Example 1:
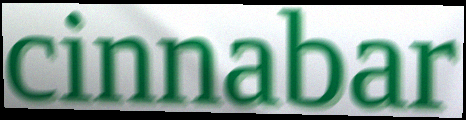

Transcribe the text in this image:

cinnabar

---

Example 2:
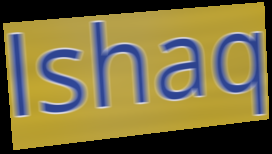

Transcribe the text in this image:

Ishaq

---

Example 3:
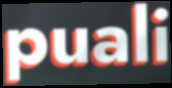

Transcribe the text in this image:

puali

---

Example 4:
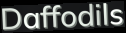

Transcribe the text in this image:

Daffodils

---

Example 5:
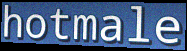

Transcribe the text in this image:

hotmale